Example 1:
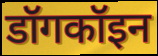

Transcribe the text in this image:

डॉगकॉइन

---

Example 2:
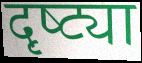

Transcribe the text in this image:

दृष्ट्या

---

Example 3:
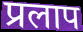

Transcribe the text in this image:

प्रलाप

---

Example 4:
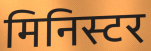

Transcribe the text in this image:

मिनिस्टर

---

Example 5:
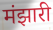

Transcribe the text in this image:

मंझारी